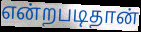
என்றபடிதான்